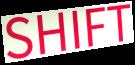
SHIFT